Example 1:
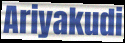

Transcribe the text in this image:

Ariyakudi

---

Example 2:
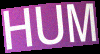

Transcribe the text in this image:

HUM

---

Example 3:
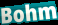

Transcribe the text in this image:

Bohm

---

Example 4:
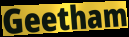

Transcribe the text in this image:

Geetham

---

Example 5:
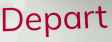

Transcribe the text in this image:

Depart